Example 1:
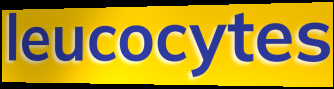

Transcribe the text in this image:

leucocytes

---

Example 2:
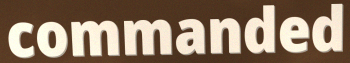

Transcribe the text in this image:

commanded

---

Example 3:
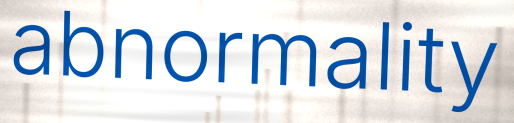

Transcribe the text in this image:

abnormality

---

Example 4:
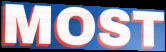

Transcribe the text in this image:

MOST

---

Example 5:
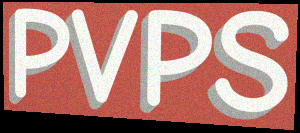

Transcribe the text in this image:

PVPS